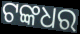
ଟଙ୍କଧର